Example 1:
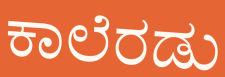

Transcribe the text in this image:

ಕಾಲೆರಡು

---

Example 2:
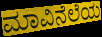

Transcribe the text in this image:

ಮಾವಿನೆಲೆಯ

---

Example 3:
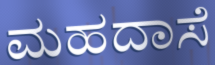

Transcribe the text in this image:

ಮಹದಾಸೆ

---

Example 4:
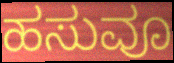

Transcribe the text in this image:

ಹಸುವೂ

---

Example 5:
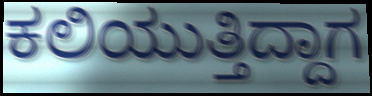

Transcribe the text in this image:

ಕಲಿಯುತ್ತಿದ್ದಾಗ